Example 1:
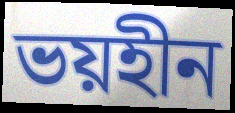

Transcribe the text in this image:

ভয়হীন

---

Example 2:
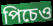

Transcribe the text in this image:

পিচেও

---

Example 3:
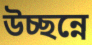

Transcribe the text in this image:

উচ্ছন্নে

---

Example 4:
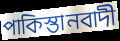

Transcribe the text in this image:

পাকিস্তানবাদী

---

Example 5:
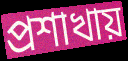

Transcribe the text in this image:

প্রশাখায়